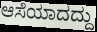
ಆಸೆಯಾದದ್ದು